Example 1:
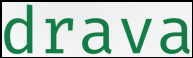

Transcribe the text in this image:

drava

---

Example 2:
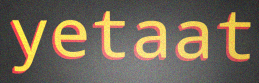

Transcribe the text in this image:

yetaat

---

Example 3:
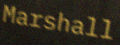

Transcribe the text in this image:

Marshall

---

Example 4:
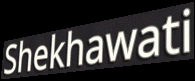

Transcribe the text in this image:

Shekhawati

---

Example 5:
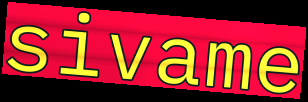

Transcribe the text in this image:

sivame